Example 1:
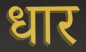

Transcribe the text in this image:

धार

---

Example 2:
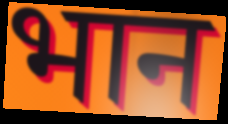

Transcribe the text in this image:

भान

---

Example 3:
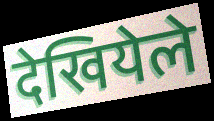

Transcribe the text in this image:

देखियेले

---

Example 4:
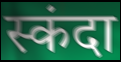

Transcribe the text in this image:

स्कंदा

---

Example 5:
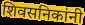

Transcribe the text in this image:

शिवसनिकांनी